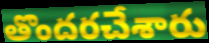
తొందరచేశారు